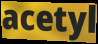
acetyl